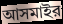
আসমাইর